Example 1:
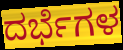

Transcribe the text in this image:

ದರ್ಭೆಗಳ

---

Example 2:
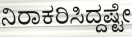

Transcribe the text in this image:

ನಿರಾಕರಿಸಿದ್ದಷ್ಟೇ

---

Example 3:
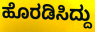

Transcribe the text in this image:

ಹೊರಡಿಸಿದ್ದು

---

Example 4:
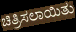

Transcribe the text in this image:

ಚಿತ್ರಿಸಲಾಯಿತು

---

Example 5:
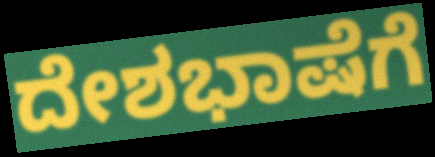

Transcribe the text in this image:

ದೇಶಭಾಷೆಗೆ